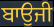
ਬਾਉਜੀ